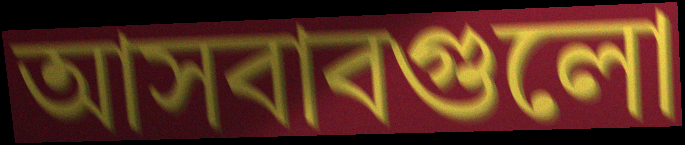
আসবাবগুলো